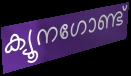
ക്യൂനഗോണ്ട്